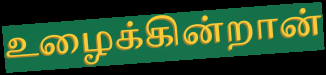
உழைக்கின்றான்